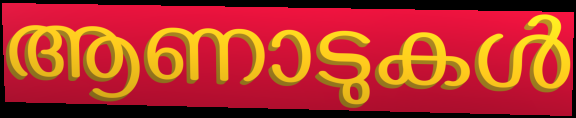
ആണാടുകൾ